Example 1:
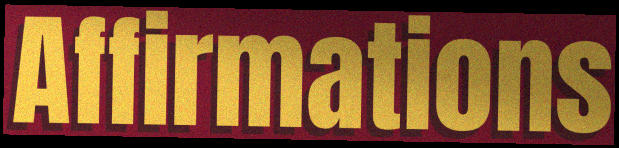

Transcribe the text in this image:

Affirmations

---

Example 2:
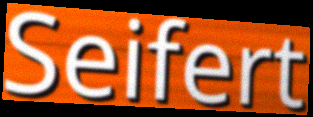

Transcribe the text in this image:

Seifert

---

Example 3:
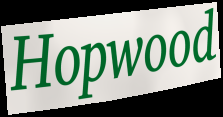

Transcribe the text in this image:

Hopwood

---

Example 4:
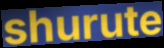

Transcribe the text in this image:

shurute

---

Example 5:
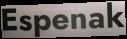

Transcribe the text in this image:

Espenak